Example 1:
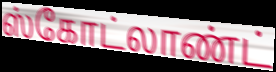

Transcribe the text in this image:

ஸ்கோட்லாண்ட்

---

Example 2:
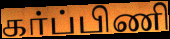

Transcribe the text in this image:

கர்ப்பிணி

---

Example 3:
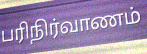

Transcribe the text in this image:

பரிநிர்வாணம்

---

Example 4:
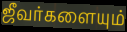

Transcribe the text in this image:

ஜீவர்களையும்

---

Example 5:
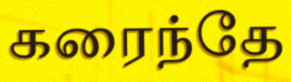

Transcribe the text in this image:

கரைந்தே